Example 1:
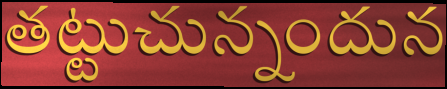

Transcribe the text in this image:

తట్టుచున్నందున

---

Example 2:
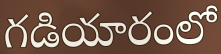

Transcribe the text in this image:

గడియారంలో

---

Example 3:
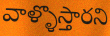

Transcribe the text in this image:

వాళ్ళొస్తారని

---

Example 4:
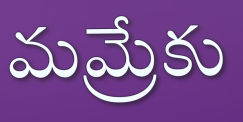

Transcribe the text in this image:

మమ్రేకు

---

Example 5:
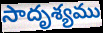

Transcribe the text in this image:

సాదృశ్యము